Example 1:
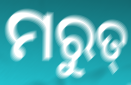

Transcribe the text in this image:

ମରୁତ୍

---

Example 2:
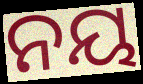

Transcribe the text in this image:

ନୟ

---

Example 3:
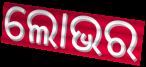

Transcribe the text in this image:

ଲୋଭର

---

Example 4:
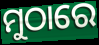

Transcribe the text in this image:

ମୁଠାରେ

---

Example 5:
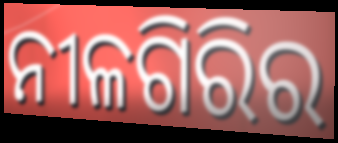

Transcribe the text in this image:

ନୀଳଗିରିର